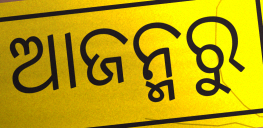
ଆଜନ୍ମରୁ